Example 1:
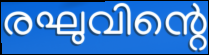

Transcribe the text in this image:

രഘുവിന്റെ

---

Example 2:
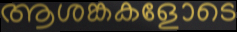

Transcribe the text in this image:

ആശങ്കകളോടെ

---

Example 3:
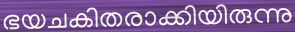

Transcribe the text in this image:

ഭയചകിതരാക്കിയിരുന്നു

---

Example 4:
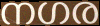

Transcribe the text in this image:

നഗര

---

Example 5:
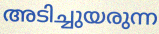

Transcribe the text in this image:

അടിച്ചുയരുന്ന